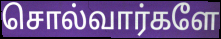
சொல்வார்களே